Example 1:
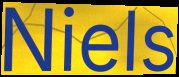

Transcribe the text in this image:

Niels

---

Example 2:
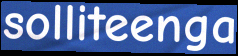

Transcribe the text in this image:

solliteenga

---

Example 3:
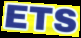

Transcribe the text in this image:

ETS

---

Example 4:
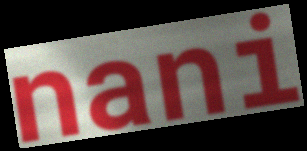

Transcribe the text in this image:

nani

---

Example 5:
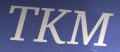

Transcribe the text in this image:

TKM